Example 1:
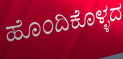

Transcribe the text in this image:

ಹೊಂದಿಕೊಳ್ಳದ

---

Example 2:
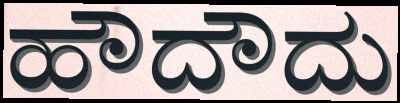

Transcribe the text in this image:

ಹೌದೌದು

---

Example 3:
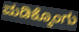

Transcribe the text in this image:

ಮಡಿಕ್ಕೊಂಗು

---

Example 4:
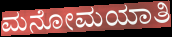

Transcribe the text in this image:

ಮನೋಮಯಾತಿ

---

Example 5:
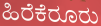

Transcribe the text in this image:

ಹಿರೆಕೆರೂರು